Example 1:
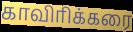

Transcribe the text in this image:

காவிரிக்கரை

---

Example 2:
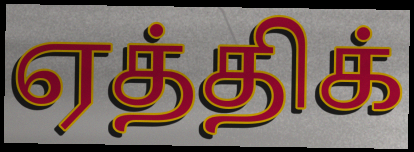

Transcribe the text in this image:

ஏத்திக்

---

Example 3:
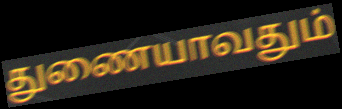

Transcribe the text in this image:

துணையாவதும்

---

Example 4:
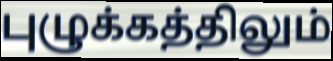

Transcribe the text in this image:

புழுக்கத்திலும்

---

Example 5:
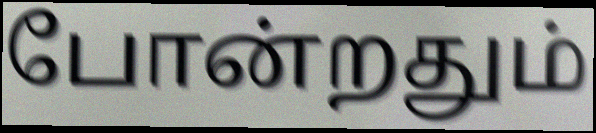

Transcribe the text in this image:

போன்றதும்